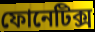
ফোনেটিক্স